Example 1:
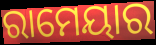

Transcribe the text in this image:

ରାମେୟାର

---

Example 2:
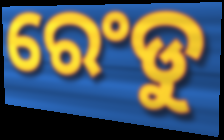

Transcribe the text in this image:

ରେଂଡୁ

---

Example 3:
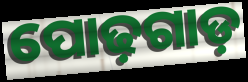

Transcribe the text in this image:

ପୋଢ଼ଗାଡ଼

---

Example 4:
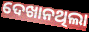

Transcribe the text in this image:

ଦେଖାନଥିଲା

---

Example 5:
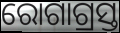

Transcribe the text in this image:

ରୋଗାଗ୍ରସ୍ତ